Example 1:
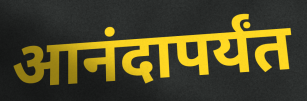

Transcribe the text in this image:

आनंदापर्यंत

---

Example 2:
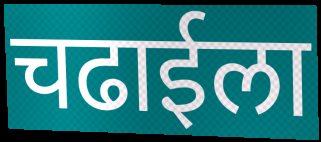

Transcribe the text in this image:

चढाईला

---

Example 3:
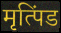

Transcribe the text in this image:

मृत्पिंड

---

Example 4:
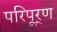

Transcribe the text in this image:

परिपूर्ण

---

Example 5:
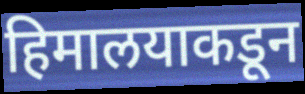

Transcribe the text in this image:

हिमालयाकडून